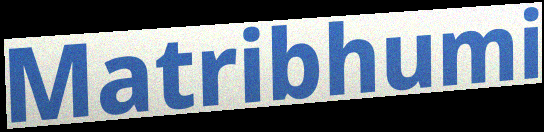
Matribhumi